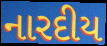
નારદીય